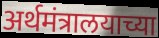
अर्थमंत्रालयाच्या